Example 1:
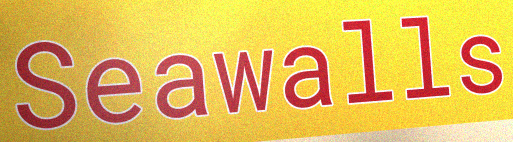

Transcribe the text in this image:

Seawalls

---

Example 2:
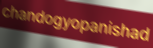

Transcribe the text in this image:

chandogyopanishad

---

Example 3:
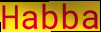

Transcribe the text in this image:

Habba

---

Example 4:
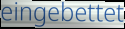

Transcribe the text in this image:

eingebettet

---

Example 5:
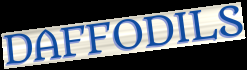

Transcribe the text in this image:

DAFFODILS